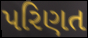
પરિણત